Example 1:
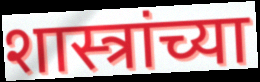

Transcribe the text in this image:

शास्त्रांच्या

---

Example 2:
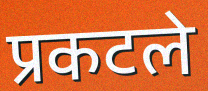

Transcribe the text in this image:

प्रकटले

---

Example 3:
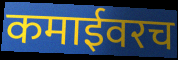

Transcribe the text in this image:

कमाईवरच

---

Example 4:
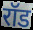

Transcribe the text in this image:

रॉड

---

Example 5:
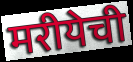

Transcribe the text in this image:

मरीयेची